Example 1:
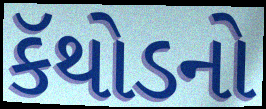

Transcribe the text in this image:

કૅથોડનો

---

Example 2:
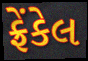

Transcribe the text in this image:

ફ્રેંકેલ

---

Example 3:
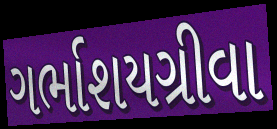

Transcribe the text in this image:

ગર્ભાશયગ્રીવા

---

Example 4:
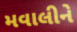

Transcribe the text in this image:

મવાલીને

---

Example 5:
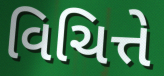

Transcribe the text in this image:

વિચિત્તે